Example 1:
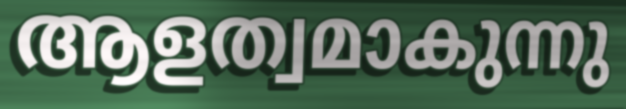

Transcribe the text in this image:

ആളത്വമാകുന്നു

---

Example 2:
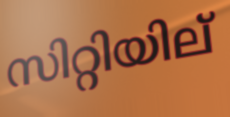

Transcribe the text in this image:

സിറ്റിയില്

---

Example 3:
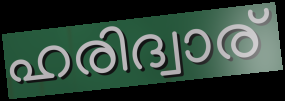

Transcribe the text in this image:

ഹരിദ്വാര്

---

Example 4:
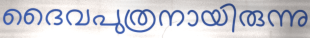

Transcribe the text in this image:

ദൈവപുത്രനായിരുന്നു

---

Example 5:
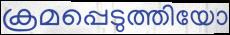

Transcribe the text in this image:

ക്രമപ്പെടുത്തിയോ